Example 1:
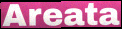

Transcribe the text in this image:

Areata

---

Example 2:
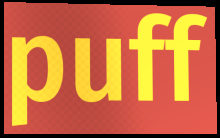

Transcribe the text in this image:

puff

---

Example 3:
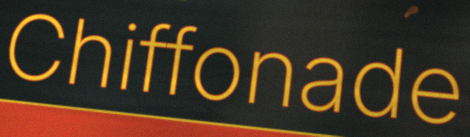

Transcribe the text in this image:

Chiffonade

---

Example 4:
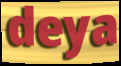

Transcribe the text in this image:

deya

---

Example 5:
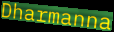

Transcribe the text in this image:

Dharmanna